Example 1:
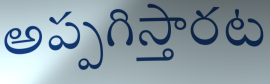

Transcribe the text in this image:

అప్పగిస్తారట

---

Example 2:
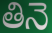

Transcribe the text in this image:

తినె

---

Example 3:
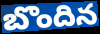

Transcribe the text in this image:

బొందిన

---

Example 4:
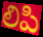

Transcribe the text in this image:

లిపి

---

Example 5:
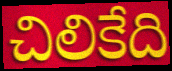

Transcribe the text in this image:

చిలికేది